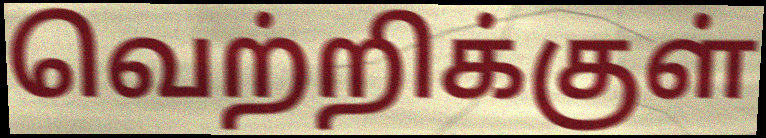
வெற்றிக்குள்